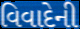
વિવાદેની